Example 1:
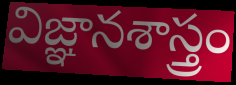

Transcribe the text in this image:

విజ్ఞానశాస్త్రం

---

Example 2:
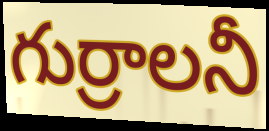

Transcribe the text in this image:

గుర్రాలనీ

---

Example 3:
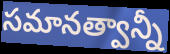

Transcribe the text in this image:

సమానత్వాన్నీ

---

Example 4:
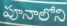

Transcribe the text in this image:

పూనాలోని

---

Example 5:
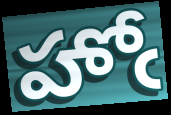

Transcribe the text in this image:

హోఁ